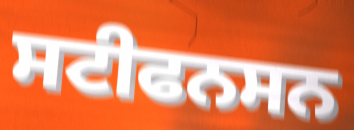
ਸਟੀਫਨਸਨ